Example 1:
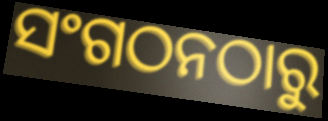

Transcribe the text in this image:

ସଂଗଠନଠାରୁ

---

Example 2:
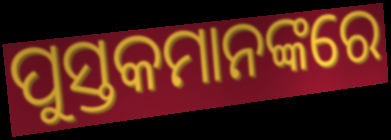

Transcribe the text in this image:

ପୁସ୍ତକମାନଙ୍କରେ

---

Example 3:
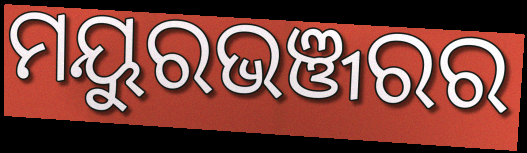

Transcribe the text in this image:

ମୟୁରଭଞ୍ଜରର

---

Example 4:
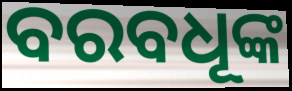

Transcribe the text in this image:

ବରବଧୂଙ୍କ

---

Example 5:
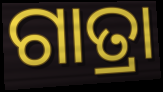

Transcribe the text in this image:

ଗାତ୍ରା